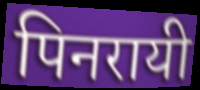
पिनरायी